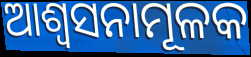
ଆଶ୍ୱସନାମୂଳକ